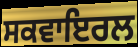
ਸਕਵਾਇਰਲ